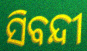
ସିବନ୍ଦୀ